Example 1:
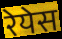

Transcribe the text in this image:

रेयेस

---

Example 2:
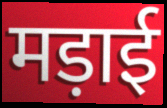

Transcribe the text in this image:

मड़ाई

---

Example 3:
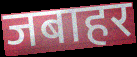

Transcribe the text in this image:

जबाहर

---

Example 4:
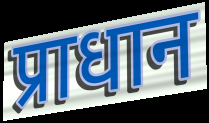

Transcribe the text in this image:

प्राधान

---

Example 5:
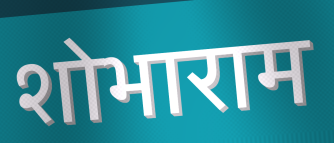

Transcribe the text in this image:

शोभाराम